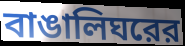
বাঙালিঘরের